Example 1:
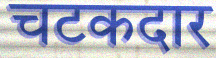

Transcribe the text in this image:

चटकदार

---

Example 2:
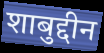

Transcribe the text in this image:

शाबुद्दीन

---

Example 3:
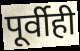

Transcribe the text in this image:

पूर्वीही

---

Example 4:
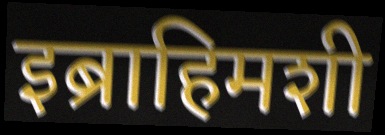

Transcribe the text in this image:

इब्राहिमशी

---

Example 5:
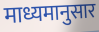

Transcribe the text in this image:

माध्यमानुसार